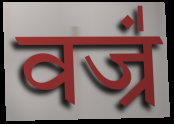
वज्रं॑